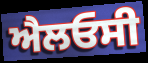
ਐਲਓਸੀ